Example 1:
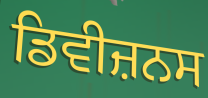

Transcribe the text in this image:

ਡਿਵੀਜ਼ਨਸ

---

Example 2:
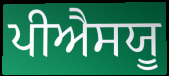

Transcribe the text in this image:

ਪੀਐਸਯੂ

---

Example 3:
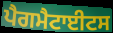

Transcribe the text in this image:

ਪੈਗਮੈਟਾਈਟਸ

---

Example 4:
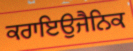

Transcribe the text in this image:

ਕਰਾਇਉਜੈਨਿਕ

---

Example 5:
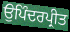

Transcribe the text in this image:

ਉਪਿੰਦਰਪ੍ਰੀਤ